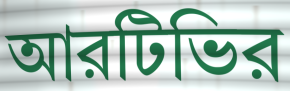
আরটিভির